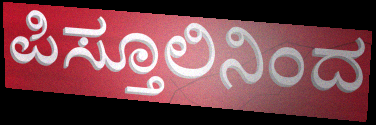
ಪಿಸ್ತೂಲಿನಿಂದ